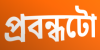
প্ৰবন্ধটো